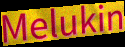
Melukin